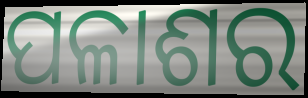
ପଳାଶର